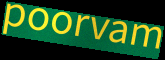
poorvam